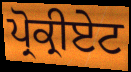
ਪ੍ਰੋਕ੍ਰੀਏਟ